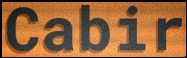
Cabir